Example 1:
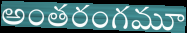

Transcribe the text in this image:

అంతరంగమూ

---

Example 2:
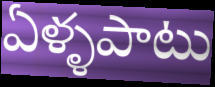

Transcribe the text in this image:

ఏళ్ళపాటు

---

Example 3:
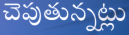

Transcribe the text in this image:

చెపుతున్నట్లు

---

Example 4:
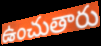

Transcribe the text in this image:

ఉంచుతారు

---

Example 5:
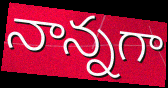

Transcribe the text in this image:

నాన్నగా